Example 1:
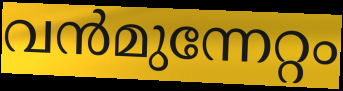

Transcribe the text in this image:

വൻമുന്നേറ്റം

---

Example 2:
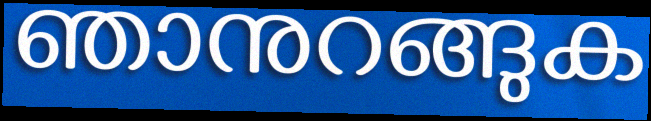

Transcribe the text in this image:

ഞാനുറങ്ങുക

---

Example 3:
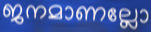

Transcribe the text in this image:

ജനമാണല്ലോ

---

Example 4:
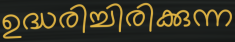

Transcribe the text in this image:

ഉദ്ധരിച്ചിരിക്കുന്ന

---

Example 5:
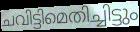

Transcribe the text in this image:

ചവിട്ടിമെതിച്ചിട്ടും